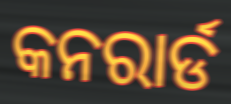
କନରାର୍ଡ